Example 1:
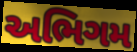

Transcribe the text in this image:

અભિગમ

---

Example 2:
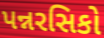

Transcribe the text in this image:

પન્નરસિકો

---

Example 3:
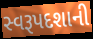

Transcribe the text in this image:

સ્વરૂપદશાની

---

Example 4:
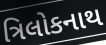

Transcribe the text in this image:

ત્રિલોકનાથ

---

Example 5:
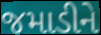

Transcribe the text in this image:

જમાડીને